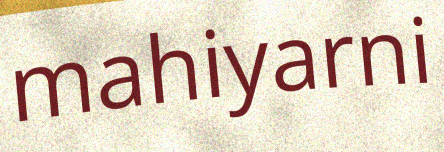
mahiyarni